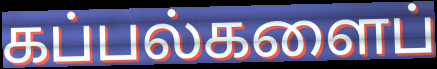
கப்பல்களைப்